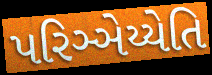
પરિઞ્ઞેય્યેતિ